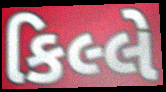
કિલ્લે